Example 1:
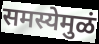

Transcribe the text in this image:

समस्येमुळं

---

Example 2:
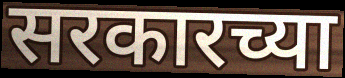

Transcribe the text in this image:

सरकारच्या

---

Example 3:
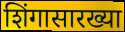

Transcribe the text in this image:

शिंगासारख्या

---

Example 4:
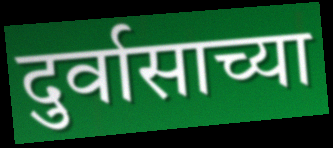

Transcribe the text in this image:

दुर्वासाच्या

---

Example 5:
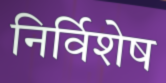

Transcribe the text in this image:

निर्विशेष